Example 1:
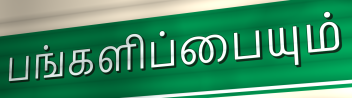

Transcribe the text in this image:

பங்களிப்பையும்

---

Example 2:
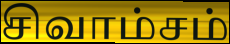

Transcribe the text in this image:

சிவாம்சம்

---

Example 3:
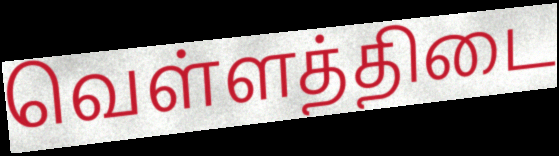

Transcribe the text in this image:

வெள்ளத்திடை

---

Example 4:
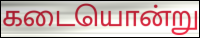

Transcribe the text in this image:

கடையொன்று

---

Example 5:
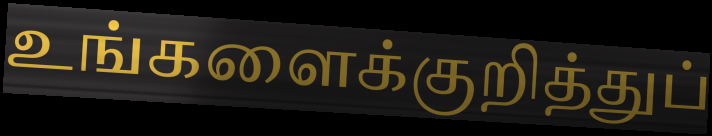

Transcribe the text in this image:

உங்களைக்குறித்துப்